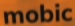
mobic